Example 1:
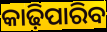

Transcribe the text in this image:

କାଢ଼ିପାରିବ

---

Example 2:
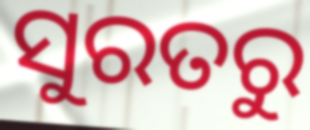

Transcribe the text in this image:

ସୁରତରୁ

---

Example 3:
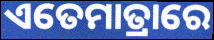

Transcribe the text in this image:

ଏତେମାତ୍ରାରେ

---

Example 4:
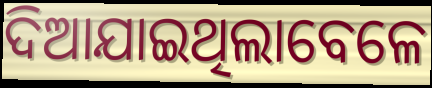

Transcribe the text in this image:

ଦିଆଯାଇଥିଲାବେଳେ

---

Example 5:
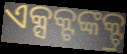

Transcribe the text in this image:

ଏକ୍ସକ୍ଟଙ୍କକ୍ଟ୍ର